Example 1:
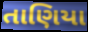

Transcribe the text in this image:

તાણિયા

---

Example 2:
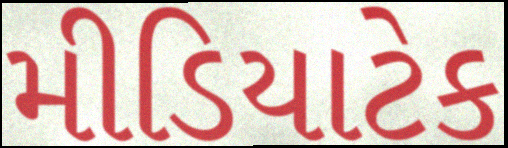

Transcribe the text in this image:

મીડિયાટેક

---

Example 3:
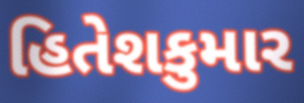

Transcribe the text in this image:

હિતેશકુમાર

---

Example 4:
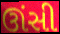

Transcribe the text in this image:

ઊંસી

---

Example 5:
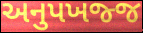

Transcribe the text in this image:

અનુપખજ્જ